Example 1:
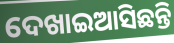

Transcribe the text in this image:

ଦେଖାଇଆସିଛନ୍ତି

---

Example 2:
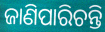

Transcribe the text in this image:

ଜାଣିପାରିଚନ୍ତି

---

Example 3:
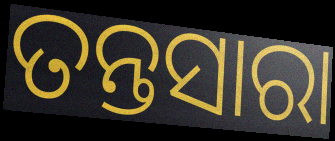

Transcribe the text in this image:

ତନ୍ତସାରା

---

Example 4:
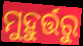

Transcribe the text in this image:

ମୁହୁର୍ତ୍ତରୁ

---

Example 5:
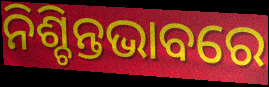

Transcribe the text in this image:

ନିଶ୍ଚିନ୍ତଭାବରେ